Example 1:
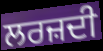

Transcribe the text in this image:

ਲਰਜ਼ਦੀ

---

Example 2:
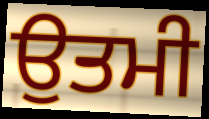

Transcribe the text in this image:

ਉਤਮੀ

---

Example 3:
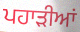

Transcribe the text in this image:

ਪਹਾਡ਼ੀਆਂ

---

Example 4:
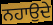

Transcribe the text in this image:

ਨਹਾਉਦੇ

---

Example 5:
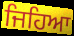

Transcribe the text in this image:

ਜਿਹਿਆ